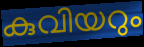
കുവിയറും